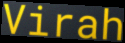
Virah